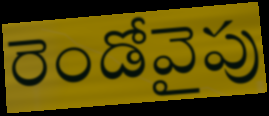
రెండోవైపు